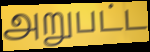
அறுபட்ட